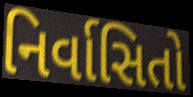
નિર્વાસિતો